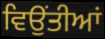
ਵਿਉਂਤੀਆਂ